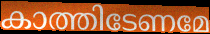
കാത്തിടേണമേ